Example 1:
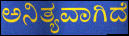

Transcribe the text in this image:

ಅನಿತ್ಯವಾಗಿದೆ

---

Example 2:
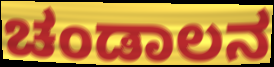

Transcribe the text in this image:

ಚಂಡಾಲನ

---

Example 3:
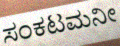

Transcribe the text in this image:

ಸಂಕಟಮನೀ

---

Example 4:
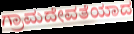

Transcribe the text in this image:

ಗ್ರಾಮದೇವತೆಯಾದ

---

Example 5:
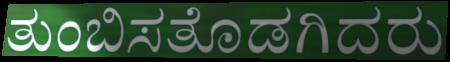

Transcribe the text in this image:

ತುಂಬಿಸತೊಡಗಿದರು